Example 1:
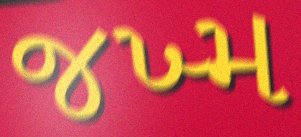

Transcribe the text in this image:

જખ્મ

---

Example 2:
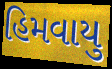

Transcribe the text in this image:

હિમવાયુ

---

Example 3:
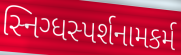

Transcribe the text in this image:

સ્નિગ્ધસ્પર્શનામકર્મ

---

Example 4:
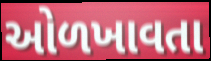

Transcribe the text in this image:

ઓળખાવતા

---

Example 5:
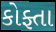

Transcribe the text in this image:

કોફ્તા